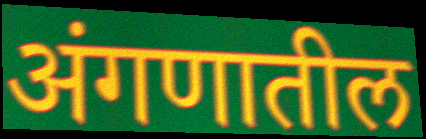
अंगणातील